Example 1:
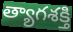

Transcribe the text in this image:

త్యాగశక్తి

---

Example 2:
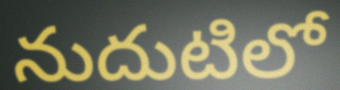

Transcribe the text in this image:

నుదుటిలో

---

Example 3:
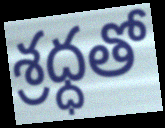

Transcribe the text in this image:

శ్రధ్ధతో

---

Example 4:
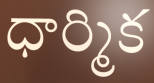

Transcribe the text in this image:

ధార్మిక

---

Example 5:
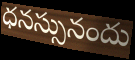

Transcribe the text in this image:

ధనస్సునందు